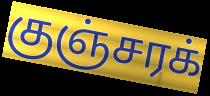
குஞ்சரக்